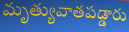
మృత్యువాతపడ్డారు